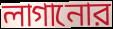
লাগানোর